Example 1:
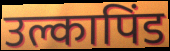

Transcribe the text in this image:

उल्‍कापिंड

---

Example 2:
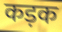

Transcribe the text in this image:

कड़क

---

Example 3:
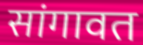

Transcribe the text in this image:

सांगावत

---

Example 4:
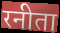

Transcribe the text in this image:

रनीता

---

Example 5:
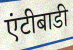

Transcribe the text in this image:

एंटीबाडी